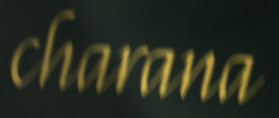
charana